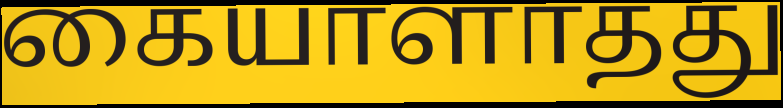
கையாளாதது